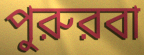
পুরুরবা